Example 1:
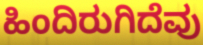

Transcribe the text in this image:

ಹಿಂದಿರುಗಿದೆವು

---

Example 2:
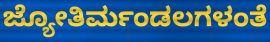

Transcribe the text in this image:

ಜ್ಯೋತಿರ್ಮಂಡಲಗಳಂತೆ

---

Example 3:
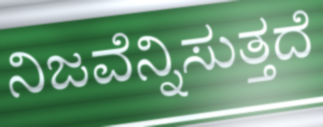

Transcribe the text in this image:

ನಿಜವೆನ್ನಿಸುತ್ತದೆ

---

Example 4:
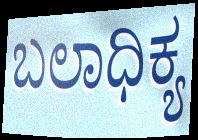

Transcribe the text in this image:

ಬಲಾಧಿಕ್ಯ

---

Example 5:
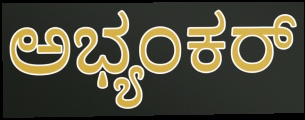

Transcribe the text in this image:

ಅಭ್ಯಂಕರ್